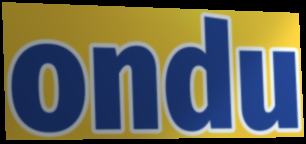
ondu